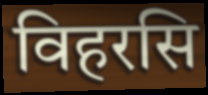
विहरसि